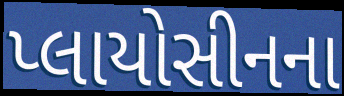
પ્લાયોસીનના